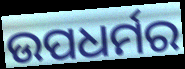
ଉପଧର୍ମର